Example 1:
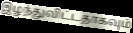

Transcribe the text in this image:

இழந்துவிட்டதாகவும்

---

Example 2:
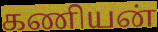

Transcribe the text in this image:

கணியன்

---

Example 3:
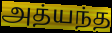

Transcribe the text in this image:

அத்யந்த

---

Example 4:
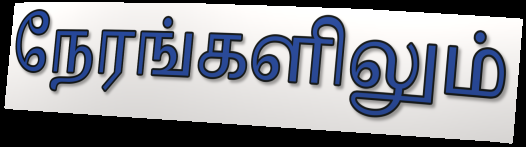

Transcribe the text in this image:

நேரங்களிலும்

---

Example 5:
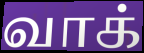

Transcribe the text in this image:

வாக்